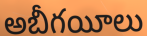
అబీగయీలు